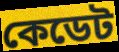
কেডেট